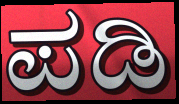
ಪಡಿ